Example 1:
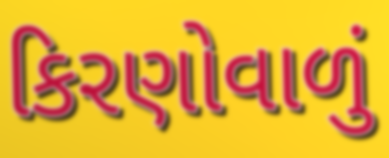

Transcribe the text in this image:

કિરણોવાળું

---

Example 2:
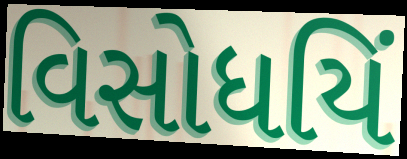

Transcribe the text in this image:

વિસોધયિં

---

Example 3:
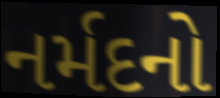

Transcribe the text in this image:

નર્મદનો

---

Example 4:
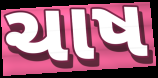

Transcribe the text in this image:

ચાષ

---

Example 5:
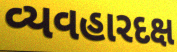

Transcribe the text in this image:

વ્યવહારદક્ષ